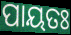
ପାୟତଃ